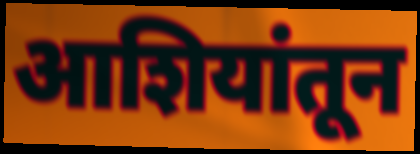
आशियांतून